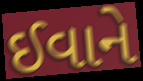
ઈવાને